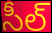
సీల్